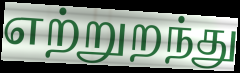
எற்றுறந்து